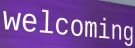
welcoming